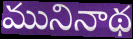
మునినాథ